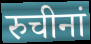
रुचीनां